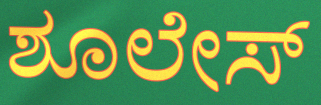
ಶೂಲೇಸ್